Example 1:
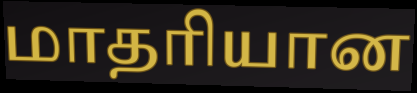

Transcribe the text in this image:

மாதரியான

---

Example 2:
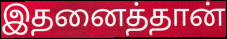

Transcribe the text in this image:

இதனைத்தான்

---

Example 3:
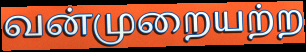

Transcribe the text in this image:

வன்முறையற்ற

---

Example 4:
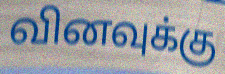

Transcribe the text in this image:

வினவுக்கு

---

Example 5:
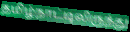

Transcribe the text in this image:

தமிழ்நாட்டிலிருந்து